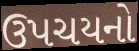
ઉપચયનો